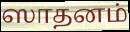
ஸாதனம்